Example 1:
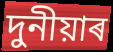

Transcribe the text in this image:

দুনীয়াৰ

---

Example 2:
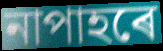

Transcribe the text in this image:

নাপাহৰে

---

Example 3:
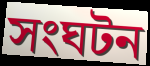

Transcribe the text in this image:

সংঘটন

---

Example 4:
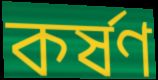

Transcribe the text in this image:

কৰ্ষণ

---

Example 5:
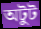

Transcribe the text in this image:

অটুট